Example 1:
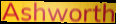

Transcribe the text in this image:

Ashworth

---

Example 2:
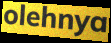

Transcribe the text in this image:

olehnya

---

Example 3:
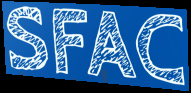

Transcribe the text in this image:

SFAC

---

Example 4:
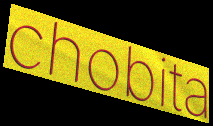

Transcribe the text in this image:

chobita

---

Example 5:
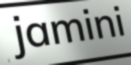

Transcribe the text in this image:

jamini